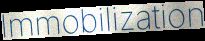
Immobilization